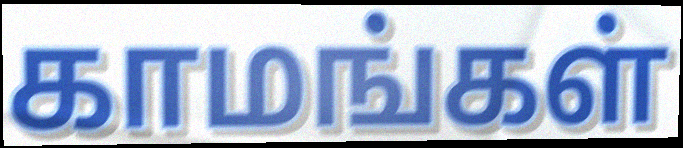
காமங்கள்